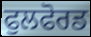
ਫੁਲਫੋਰਡ